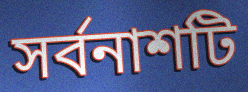
সর্বনাশটি